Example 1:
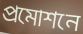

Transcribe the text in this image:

প্রমোশনে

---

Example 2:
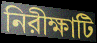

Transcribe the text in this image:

নিরীক্ষাটি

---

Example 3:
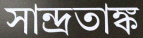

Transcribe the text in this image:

সান্দ্রতাঙ্ক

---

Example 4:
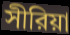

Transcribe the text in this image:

সীরিয়া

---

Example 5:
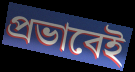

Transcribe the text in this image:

প্রভাবেই